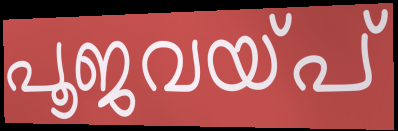
പൂജവയ്പ്